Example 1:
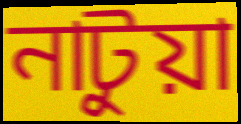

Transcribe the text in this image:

নাটুয়া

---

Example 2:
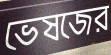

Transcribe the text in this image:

ভেষজের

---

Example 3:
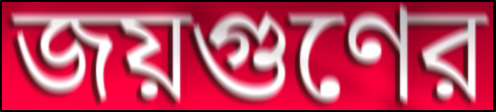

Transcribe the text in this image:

জয়গুণের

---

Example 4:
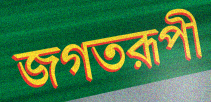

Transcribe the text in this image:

জগতরূপী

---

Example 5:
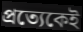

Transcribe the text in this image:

প্রত্যেকেই